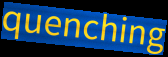
quenching